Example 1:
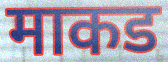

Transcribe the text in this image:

माकड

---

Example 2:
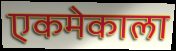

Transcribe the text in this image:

एकमेकाला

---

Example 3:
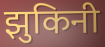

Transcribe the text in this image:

झुकिनी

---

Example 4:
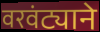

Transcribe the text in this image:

वरवंट्याने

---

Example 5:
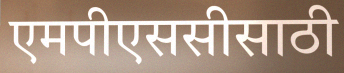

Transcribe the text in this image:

एमपीएससीसाठी